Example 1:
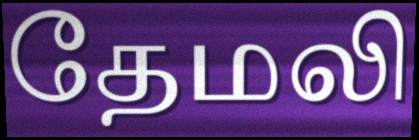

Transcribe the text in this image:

தேமலி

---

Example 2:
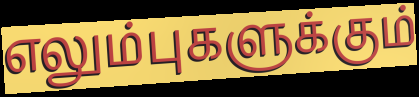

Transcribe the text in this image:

எலும்புகளுக்கும்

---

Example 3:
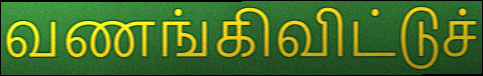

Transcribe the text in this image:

வணங்கிவிட்டுச்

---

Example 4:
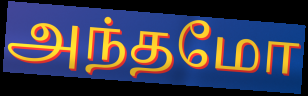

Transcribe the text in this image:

அந்தமோ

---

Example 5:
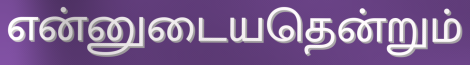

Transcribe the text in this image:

என்னுடையதென்றும்